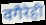
वगैरेही